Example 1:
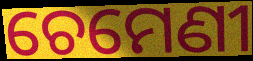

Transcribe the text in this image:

ଚେମେଣୀ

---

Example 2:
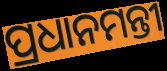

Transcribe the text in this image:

ପ୍ରଧାନମନ୍ତୀ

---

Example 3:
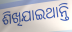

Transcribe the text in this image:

ଶିଖିଯାଇଥାନ୍ତି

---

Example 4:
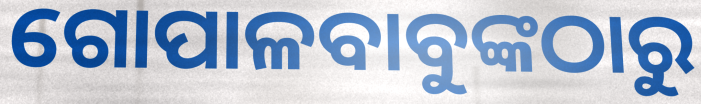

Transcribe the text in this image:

ଗୋପାଳବାବୁଙ୍କଠାରୁ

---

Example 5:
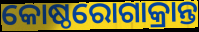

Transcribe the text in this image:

କୋଷ୍ଠରୋଗାକ୍ରାନ୍ତ